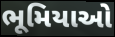
ભૂમિયાઓ